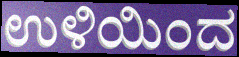
ಉಳಿಯಿಂದ